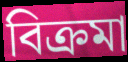
বিক্রমা